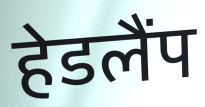
हेडलैंप